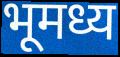
भूमध्य